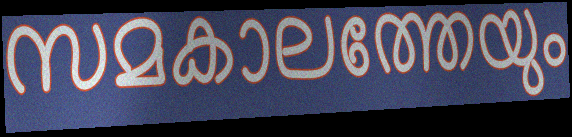
സമകാലത്തേയും